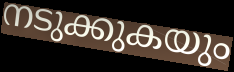
നടുക്കുകയും